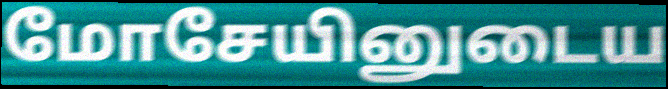
மோசேயினுடைய